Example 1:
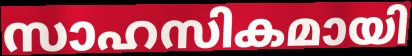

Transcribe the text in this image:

സാഹസികമായി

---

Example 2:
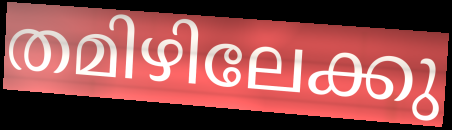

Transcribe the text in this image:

തമിഴിലേക്കു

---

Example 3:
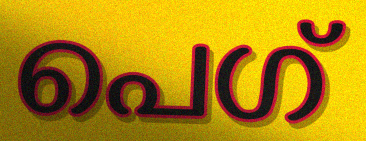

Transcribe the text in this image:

പെഗ്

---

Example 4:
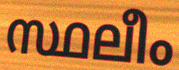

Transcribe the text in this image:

സ്ഥലീം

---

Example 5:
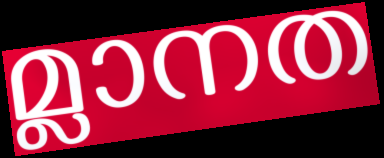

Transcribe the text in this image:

മ്ലാനത